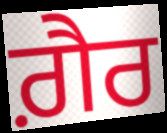
ਗ਼ੈਰ